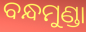
ବନ୍ଧମୁଣ୍ଡା